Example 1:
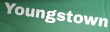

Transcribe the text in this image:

Youngstown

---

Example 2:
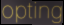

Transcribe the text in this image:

opting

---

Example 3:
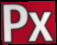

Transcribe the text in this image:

Px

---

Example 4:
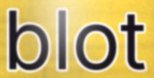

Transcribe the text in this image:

blot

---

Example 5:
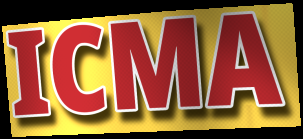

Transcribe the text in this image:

ICMA